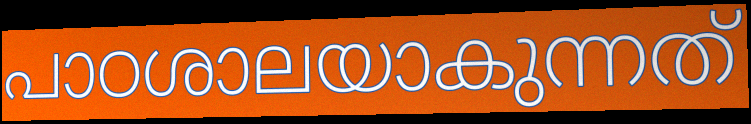
പാഠശാലയാകുന്നത്